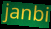
janbi